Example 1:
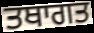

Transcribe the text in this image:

ਤਥਾਗਤ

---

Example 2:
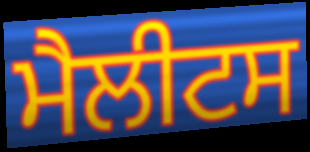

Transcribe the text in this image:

ਮੈਲੀਟਸ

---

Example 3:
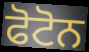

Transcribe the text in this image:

ਫੋਟੋਨ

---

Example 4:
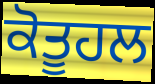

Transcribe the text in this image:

ਕੋਤੂਹਲ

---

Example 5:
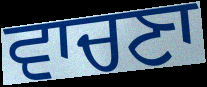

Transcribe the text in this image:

ਵਾਚਣਾ